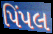
પિંપલ